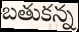
బతుకన్న